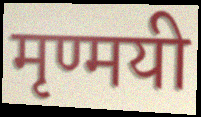
मृण्मयी